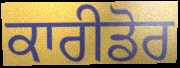
ਕਾਰੀਡੋਰ